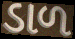
ડાળ